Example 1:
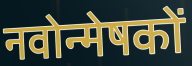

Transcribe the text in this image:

नवोन्मेषकों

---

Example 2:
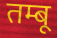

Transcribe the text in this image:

तम्बू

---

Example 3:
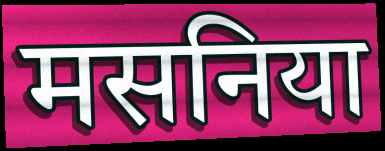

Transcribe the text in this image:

मसनिया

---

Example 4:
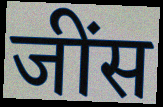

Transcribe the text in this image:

जींस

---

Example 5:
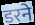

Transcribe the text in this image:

डरने